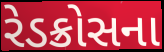
રેડક્રોસના